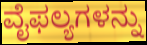
ವೈಫಲ್ಯಗಳನ್ನು